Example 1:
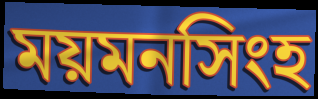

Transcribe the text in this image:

ময়মনসিংহ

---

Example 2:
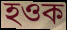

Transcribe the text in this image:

হওক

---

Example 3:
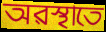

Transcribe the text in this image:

অৱস্থাতে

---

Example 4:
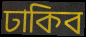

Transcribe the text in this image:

ঢাকিব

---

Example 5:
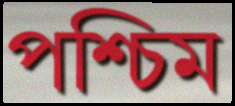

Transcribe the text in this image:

পশ্চিম